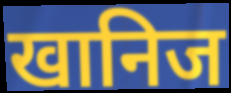
खानिज